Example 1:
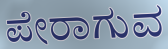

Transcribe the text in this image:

ಪೇರಾಗುವ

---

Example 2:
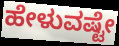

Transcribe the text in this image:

ಹೇಳುವಷ್ಟೇ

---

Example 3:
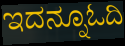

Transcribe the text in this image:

ಇದನ್ನೂಓದಿ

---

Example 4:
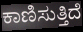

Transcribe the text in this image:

ಕಾಣಿಸುತ್ತಿದೆ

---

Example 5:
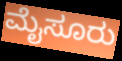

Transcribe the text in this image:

ಮೈಸೂರು